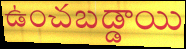
ఉంచబడ్డాయి